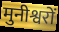
मुनीश्वरों